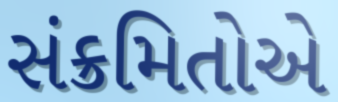
સંક્રમિતોએ